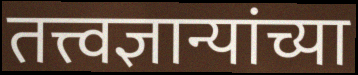
तत्त्वज्ञान्यांच्या